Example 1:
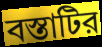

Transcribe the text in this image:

বস্তাটির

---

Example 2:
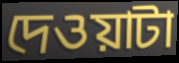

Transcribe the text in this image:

দেওয়াটা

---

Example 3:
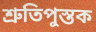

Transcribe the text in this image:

শ্রুতিপুস্তক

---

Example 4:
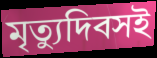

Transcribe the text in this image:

মৃত্যুদিবসই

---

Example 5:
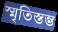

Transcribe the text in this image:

স্মৃতিস্তম্ভ